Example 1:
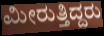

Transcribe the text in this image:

ಮೀರುತ್ತಿದ್ದರು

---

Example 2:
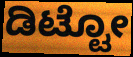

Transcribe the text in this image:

ಡಿಟ್ಟೋ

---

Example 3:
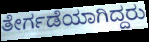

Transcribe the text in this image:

ತೇರ್ಗಡೆಯಾಗಿದ್ದರು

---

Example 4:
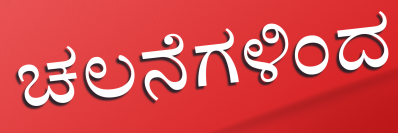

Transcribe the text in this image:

ಚಲನೆಗಳಿಂದ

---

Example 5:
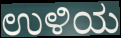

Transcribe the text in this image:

ಉಳಿಯ